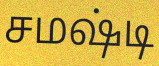
சமஷ்டி